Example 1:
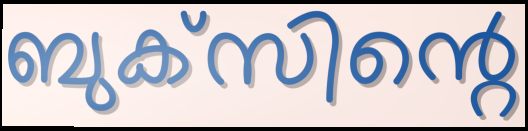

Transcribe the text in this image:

ബുക്‌സിന്റെ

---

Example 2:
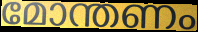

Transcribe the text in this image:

മോന്തണം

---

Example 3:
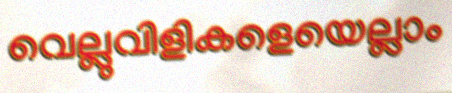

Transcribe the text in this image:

വെല്ലുവിളികളെയെല്ലാം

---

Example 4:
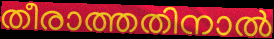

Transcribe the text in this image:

തീരാത്തതിനാൽ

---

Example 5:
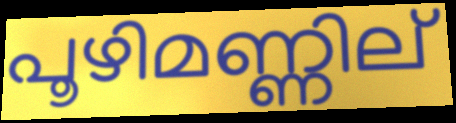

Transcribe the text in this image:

പൂഴിമണ്ണില്